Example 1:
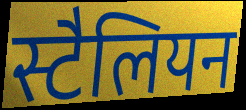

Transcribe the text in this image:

स्टैलियन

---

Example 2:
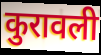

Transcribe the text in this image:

कुरावली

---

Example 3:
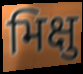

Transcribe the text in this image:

भिक्षु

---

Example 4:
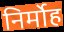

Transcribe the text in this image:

निर्मोह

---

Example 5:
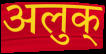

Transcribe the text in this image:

अलुक्